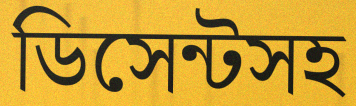
ডিসেন্টসহ